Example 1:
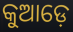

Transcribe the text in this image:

କୁଆଡ଼େ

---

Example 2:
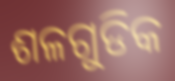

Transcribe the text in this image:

ଶଳଗୁଡିକ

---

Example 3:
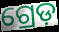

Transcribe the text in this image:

ଗ୍ରେଡ଼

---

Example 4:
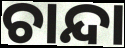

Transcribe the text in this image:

ଚାନ୍ଦା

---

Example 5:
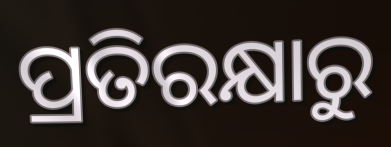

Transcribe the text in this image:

ପ୍ରତିରକ୍ଷାରୁ